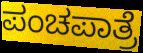
ಪಂಚಪಾತ್ರೆ